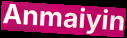
Anmaiyin